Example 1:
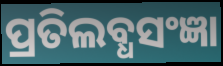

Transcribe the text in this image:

ପ୍ରତିଲବ୍ଧସଂଜ୍ଞା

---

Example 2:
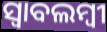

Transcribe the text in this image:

ସ୍ଵାବଲମ୍ଵୀ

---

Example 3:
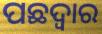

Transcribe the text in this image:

ପଛଦ୍ୱାର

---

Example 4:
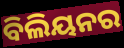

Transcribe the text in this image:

ବିଲିୟନର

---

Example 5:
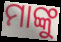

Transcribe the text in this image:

ମାଙ୍କୁ